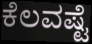
ಕೆಲವಷ್ಟೆ